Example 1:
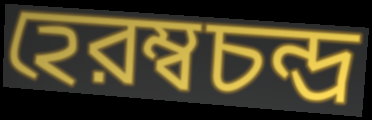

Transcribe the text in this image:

হেরম্বচন্দ্র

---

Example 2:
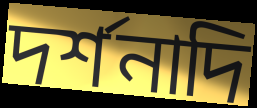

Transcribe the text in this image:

দর্শনাদি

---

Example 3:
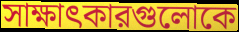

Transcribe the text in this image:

সাক্ষাৎকারগুলোকে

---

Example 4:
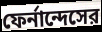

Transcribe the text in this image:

ফের্নান্দেসের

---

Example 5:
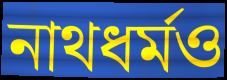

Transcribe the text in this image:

নাথধর্মও